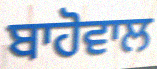
ਬਾਹੋਵਾਲ